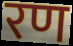
रण